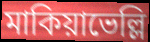
মাকিয়াভেল্লি